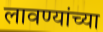
लावण्यांच्या